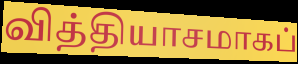
வித்தியாசமாகப்